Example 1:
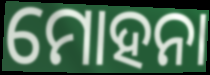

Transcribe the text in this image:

ମୋହନା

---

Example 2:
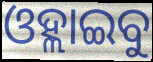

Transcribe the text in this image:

ଓହ୍ଲାଇବୁ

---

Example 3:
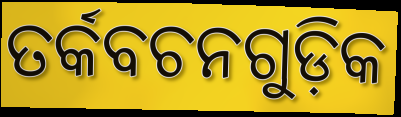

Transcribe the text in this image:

ତର୍କବଚନଗୁଡ଼ିକ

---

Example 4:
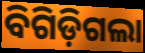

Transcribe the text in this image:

ବିଗିଡ଼ିଗଲା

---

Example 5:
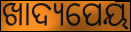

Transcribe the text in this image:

ଖାଦ୍ୟପେୟ